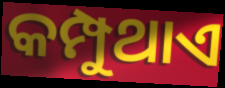
କମ୍ପୁଥାଏ